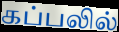
கப்பலில்